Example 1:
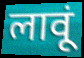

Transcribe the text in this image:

लावूं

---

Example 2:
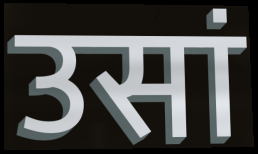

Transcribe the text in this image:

उसां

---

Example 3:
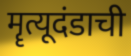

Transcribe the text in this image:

मॄत्यूदंडाची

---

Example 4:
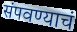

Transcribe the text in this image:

संपवण्याचं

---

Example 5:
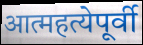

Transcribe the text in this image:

आत्महत्येपूर्वी